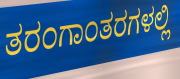
ತರಂಗಾಂತರಗಳಲ್ಲಿ